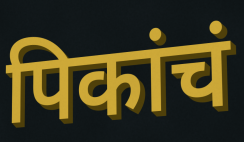
पिकांचं